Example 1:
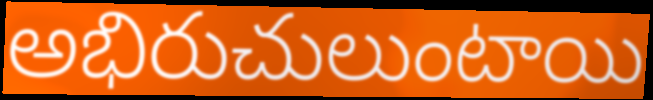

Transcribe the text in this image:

అభిరుచులుంటాయి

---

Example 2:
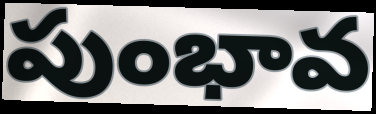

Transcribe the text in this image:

పుంభావ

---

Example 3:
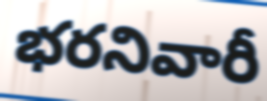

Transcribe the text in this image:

భరనివారీ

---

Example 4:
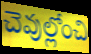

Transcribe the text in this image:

చెవుల్లోంచి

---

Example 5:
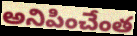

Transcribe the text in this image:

అనిపించేంత